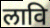
लावि